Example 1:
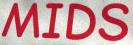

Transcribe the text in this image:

MIDS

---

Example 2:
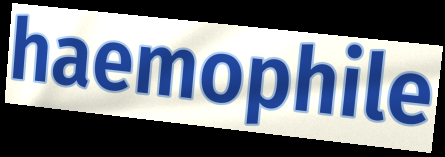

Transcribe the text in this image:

haemophile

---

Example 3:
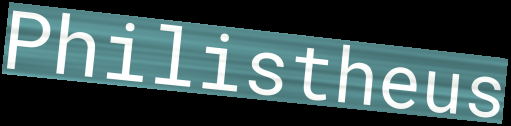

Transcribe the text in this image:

Philistheus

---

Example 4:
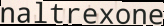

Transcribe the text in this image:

naltrexone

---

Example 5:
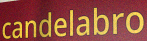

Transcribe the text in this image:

candelabro